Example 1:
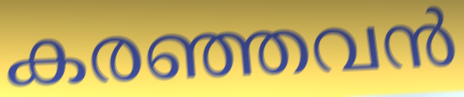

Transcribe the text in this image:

കരഞ്ഞവൻ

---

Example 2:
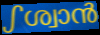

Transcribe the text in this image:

ഽശ്വാൻ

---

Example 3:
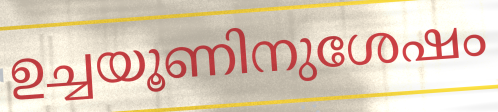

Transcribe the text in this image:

ഉച്ചയൂണിനുശേഷം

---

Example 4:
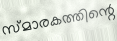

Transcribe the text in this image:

സ്മാരകത്തിന്റെ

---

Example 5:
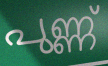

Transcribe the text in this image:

പുണ്ണ്